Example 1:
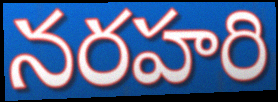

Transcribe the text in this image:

నరహరి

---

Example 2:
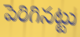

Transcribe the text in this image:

పెరిగినట్టు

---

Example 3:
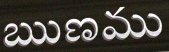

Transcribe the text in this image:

ఋణము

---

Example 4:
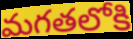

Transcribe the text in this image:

మగతలోకి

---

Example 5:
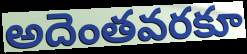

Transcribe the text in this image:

అదెంతవరకూ